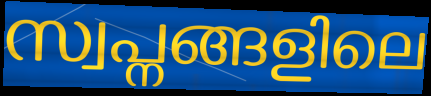
സ്വപ്നങ്ങളിലെ